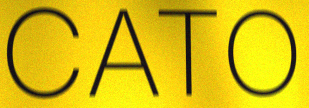
CATO